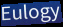
Eulogy